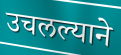
उचलल्याने